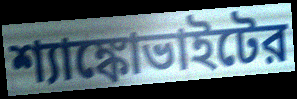
শ্যাঙ্কোভাইটের